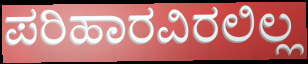
ಪರಿಹಾರವಿರಲಿಲ್ಲ